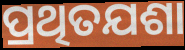
ପ୍ରଥିତଯଶା